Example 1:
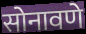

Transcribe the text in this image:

सोनावणे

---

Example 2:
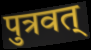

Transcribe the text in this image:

पुत्रवत्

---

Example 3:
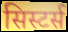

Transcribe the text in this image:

सिस्टर्स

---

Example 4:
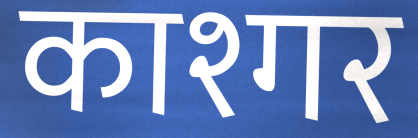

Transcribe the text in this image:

काश्गर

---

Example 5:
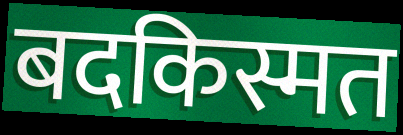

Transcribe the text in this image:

बदकिस्मत